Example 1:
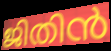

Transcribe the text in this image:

ജിതിൻ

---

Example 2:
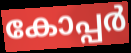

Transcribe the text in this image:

കോപ്പർ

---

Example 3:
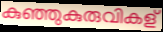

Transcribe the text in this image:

കുഞ്ഞുകുരുവികള്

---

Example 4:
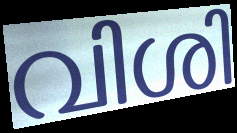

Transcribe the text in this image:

വിശി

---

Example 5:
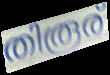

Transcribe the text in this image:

തിരൂര്